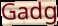
Gadg